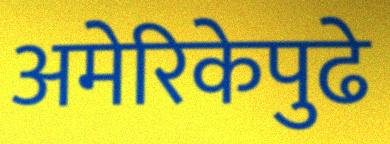
अमेरिकेपुढे